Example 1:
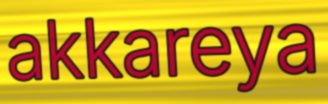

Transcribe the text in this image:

akkareya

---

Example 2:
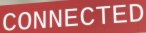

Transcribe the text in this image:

CONNECTED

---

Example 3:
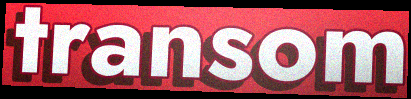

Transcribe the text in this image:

transom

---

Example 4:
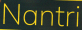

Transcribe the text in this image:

Nantri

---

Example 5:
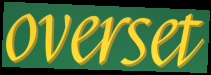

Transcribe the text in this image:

overset